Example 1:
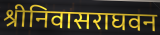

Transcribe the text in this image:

श्रीनिवासराघवन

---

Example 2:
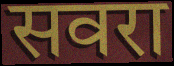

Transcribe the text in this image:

सवरा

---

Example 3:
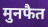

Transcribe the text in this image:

मुनफैत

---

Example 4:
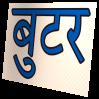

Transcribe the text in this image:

बुटर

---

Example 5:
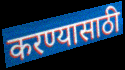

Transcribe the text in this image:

करण्यासाठी